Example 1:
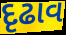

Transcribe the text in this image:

દૃઢાવ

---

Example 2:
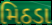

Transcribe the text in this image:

મિઠડા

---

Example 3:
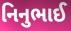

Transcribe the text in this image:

નિનુભાઈ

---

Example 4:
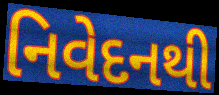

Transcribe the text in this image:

નિવેદનથી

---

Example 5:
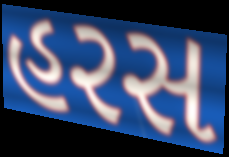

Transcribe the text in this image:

હરસ